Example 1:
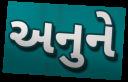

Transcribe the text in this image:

અનુને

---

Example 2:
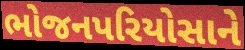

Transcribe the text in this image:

ભોજનપરિયોસાને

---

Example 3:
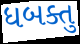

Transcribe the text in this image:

ધબક્તુ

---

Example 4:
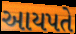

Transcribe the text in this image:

આયપતે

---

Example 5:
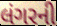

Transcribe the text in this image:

લંગરની